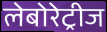
लेबोरेट्रीज